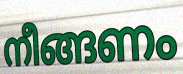
നീങ്ങണം